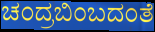
ಚಂದ್ರಬಿಂಬದಂತೆ